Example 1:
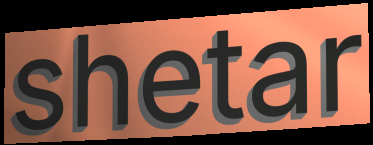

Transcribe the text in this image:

shetar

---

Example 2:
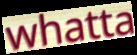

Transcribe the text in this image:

whatta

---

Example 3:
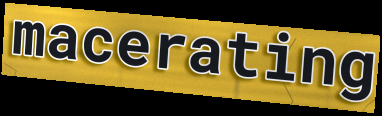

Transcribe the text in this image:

macerating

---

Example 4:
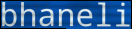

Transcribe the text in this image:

bhaneli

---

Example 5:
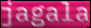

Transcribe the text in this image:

jagala